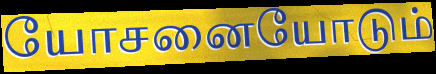
யோசனையோடும்